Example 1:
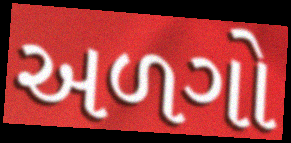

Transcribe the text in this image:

અળગો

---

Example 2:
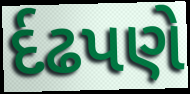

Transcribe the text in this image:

ર્દઢપણે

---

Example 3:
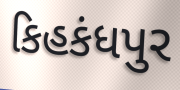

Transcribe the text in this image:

કિહકંધપુર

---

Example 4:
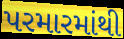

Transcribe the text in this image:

પરમારમાંથી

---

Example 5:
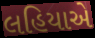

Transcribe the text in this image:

લહિયાએ